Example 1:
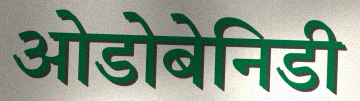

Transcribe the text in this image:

ओडोबेनिडी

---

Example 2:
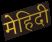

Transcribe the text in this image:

मेहिदी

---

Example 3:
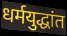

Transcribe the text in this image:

धर्मयुद्धांत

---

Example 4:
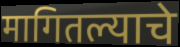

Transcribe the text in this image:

मागितल्याचे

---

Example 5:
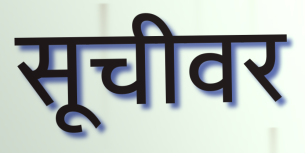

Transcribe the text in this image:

सूचीवर